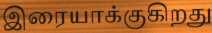
இரையாக்குகிறது